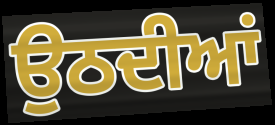
ਉਠਦੀਆਂ